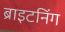
ब्राइटनिंग